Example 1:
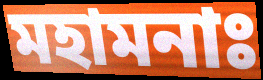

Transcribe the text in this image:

মহামনাঃ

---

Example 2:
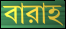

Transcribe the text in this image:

বারাহ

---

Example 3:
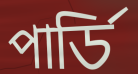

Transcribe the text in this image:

পার্ডি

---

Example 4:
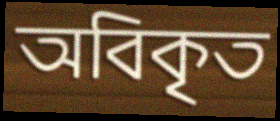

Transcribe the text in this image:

অবিকৃত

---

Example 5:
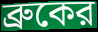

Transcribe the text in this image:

ব্রুকের